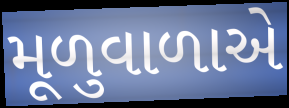
મૂળુવાળાએ